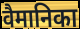
वैमानिका